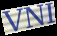
VNI